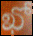
ఖో